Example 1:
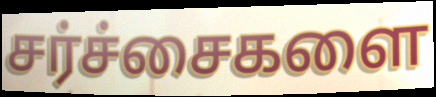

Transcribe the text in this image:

சர்ச்சைகளை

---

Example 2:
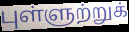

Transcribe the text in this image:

புள்ளுற்றுக்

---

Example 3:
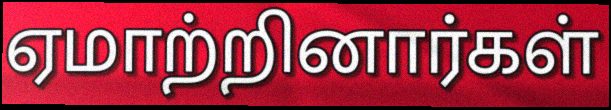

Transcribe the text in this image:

ஏமாற்றினார்கள்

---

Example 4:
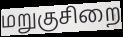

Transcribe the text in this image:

மறுகுசிறை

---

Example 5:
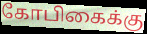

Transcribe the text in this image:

கோபிகைக்கு